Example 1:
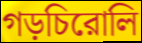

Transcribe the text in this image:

গড়চিরোলি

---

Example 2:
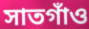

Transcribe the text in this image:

সাতগাঁও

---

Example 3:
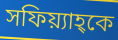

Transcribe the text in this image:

সফিয়্যাহ্কে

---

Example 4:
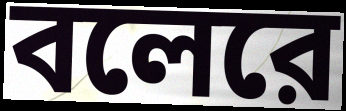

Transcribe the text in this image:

বলেরে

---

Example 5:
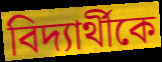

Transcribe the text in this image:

বিদ্যার্থীকে